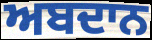
ਅਬਦਾਨ